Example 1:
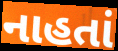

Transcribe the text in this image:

નાહતાં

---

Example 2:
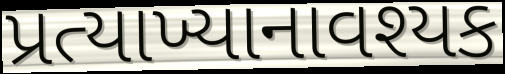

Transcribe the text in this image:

પ્રત્યાખ્યાનાવશ્યક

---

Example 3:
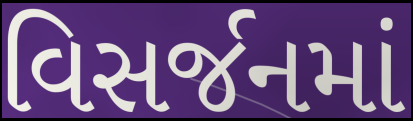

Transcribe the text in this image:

વિસર્જનમાં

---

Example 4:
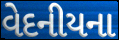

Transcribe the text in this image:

વેદનીયના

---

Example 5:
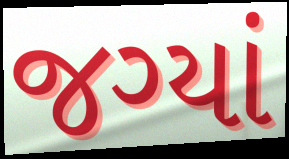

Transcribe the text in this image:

જગ્યાં